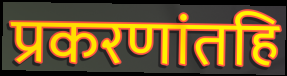
प्रकरणांतहि